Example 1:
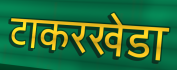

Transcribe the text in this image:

टाकरखेडा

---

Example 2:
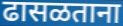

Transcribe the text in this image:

ढासळताना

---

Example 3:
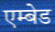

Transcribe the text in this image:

एम्बेड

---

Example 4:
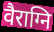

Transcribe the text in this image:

वैराग्नि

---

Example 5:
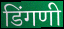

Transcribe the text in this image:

डिंगणी